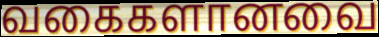
வகைகளானவை